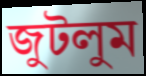
জুটলুম